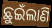
ଛୁଇଁଲାଣି